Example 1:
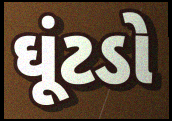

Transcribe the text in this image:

ઘૂંટડો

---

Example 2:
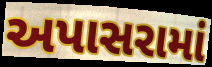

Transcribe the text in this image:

અપાસરામાં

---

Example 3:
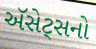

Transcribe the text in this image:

ઍસેટ્સનો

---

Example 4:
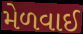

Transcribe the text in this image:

મેળવાઈ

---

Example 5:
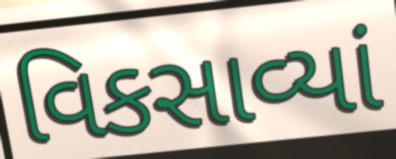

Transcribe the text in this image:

વિકસાવ્યાં